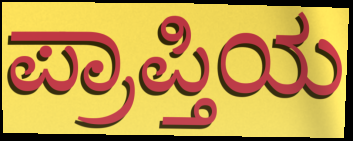
ಪ್ರಾಪ್ತಿಯ